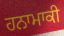
ਹਨਾਮਾਕੀ